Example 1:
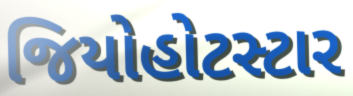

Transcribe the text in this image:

જિયોહોટસ્ટાર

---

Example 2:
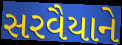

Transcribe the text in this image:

સરવૈયાને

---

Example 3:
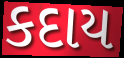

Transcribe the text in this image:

કદાય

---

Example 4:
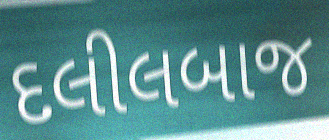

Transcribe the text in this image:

દલીલબાજ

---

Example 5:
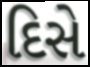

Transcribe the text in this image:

દિસે